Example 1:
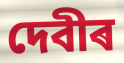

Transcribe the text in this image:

দেবীৰ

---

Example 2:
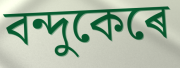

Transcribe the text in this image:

বন্দুকেৰে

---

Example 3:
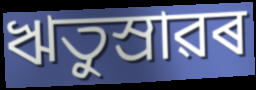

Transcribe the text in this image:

ঋতুস্ৰাৱৰ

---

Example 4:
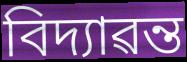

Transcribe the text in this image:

বিদ্যাৱন্ত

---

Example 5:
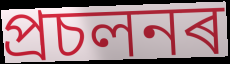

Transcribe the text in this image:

প্ৰচলনৰ